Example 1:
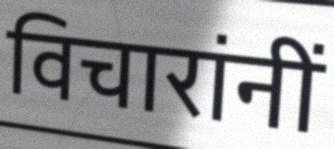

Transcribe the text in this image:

विचारांनीं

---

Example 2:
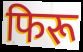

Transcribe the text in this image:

फिरू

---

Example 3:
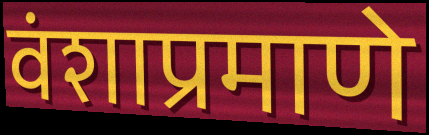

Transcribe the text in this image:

वंशाप्रमाणे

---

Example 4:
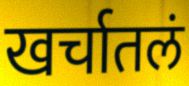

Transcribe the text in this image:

खर्चातलं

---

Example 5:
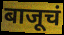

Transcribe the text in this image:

बाजूचं